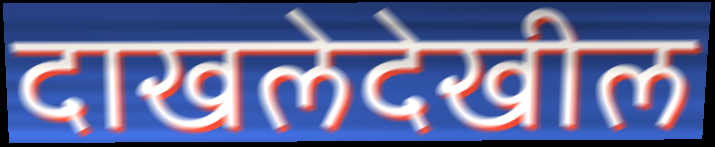
दाखलेदेखील